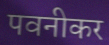
पवनीकर